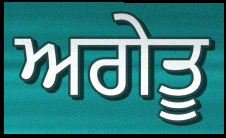
ਅਗੇਤੂ